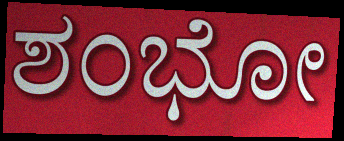
ಶಂಭೋ